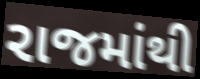
રાજમાંથી